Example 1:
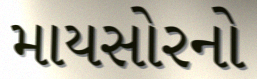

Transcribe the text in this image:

માયસોરનો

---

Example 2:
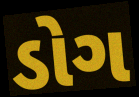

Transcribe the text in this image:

ડોગ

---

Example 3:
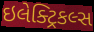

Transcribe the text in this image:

ઇલેક્ટ્રિકલ્સ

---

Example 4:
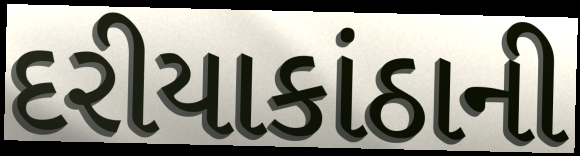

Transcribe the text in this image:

દરીયાકાંઠાની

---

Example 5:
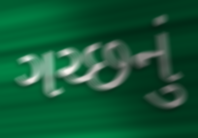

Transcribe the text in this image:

ગચ્છનું